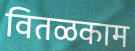
वितळकाम